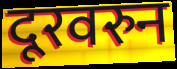
दूरवरुन